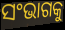
ସଂଭାଗକୁ